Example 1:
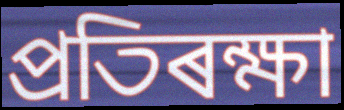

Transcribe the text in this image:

প্ৰতিৰক্ষা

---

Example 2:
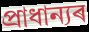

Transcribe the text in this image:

প্ৰাধান্যৰ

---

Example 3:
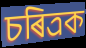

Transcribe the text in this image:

চৰিত্ৰক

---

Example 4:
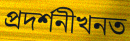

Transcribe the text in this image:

প্ৰদৰ্শনীখনত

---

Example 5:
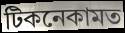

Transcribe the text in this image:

টিকনেকামত